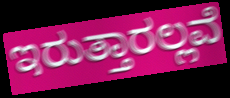
ಇರುತ್ತಾರಲ್ಲವೆ